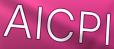
AICPI